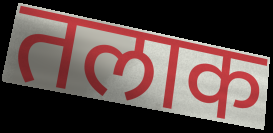
तलाक